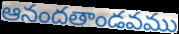
ఆనందతాండవము